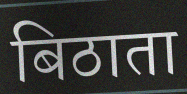
बिठाता